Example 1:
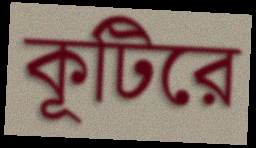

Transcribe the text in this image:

কূটিরে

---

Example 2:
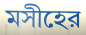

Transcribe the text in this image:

মসীহের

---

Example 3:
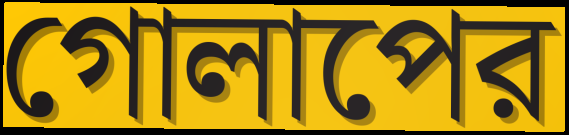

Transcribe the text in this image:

গোলাপের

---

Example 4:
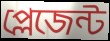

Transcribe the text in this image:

প্লেজেন্ট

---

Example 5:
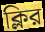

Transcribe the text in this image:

ক্লির